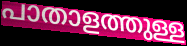
പാതാളത്തുള്ള